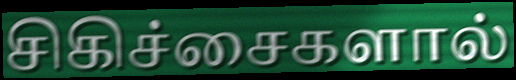
சிகிச்சைகளால்